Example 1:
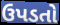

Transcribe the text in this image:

ઉપડતો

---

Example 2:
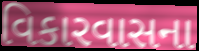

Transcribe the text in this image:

વિકારવાસના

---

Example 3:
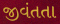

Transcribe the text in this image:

જીવંતતા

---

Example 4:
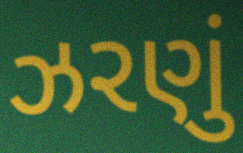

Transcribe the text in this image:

ઝરણું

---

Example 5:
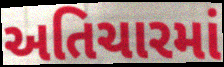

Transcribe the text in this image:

અતિચારમાં